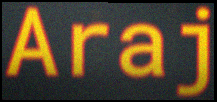
Araj